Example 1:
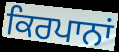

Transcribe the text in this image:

ਕਿਰਪਾਨਾਂ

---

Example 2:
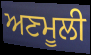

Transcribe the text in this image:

ਅਣਮੂਲੀ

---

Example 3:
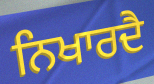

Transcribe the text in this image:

ਨਿਖਾਰਦੈ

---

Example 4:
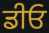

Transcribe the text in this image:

ਡੀਓ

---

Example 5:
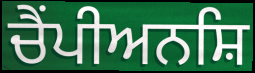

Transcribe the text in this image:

ਚੈਂਪੀਅਨਸ਼ਿ